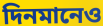
দিনমানেও